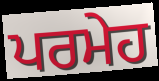
ਪਰਮੇਹ